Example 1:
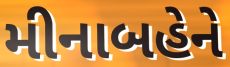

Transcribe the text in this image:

મીનાબહેને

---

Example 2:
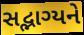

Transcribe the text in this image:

સદ્ભાગ્યને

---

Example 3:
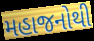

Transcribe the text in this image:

મહાજનોથી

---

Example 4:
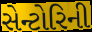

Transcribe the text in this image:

સેન્ટોરિની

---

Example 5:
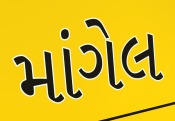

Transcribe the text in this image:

માંગેલ